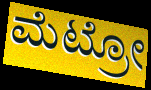
ಮೆಟ್ರೋ